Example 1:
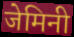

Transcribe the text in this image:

जेमिनी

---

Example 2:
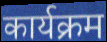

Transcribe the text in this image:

कार्यक्रम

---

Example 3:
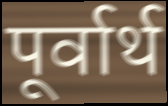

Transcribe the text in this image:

पूर्वार्थ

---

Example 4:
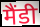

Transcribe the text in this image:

मैंडी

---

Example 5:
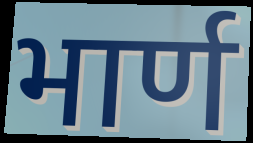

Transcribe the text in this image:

भार्ण